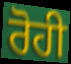
ਰੋਹੀ